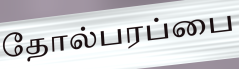
தோல்பரப்பை